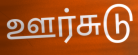
ஊர்சுடு